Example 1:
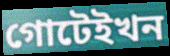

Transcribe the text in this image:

গোটেইখন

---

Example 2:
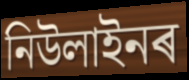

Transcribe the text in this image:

নিউলাইনৰ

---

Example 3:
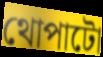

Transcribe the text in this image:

থোপাটো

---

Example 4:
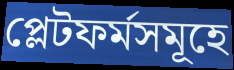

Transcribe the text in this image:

প্লেটফৰ্মসমূহে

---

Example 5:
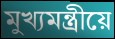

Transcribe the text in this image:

মুখ্যমন্ত্ৰীয়ে